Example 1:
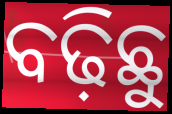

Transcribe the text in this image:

ବଢ଼ିଛୁ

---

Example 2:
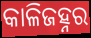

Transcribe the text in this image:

କାଳିଜହ୍ନର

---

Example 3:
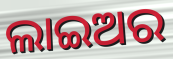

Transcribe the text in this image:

ଲାଇଅର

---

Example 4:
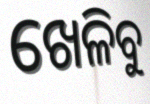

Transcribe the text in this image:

ଖେଳିବୁ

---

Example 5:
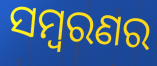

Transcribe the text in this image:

ସମ୍ବରଣର